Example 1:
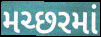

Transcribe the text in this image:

મચ્છરમાં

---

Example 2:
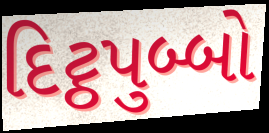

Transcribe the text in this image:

દિટ્ઠપુબ્બો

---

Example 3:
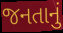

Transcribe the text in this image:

જનતાનું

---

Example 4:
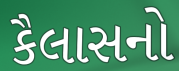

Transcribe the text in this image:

કૈલાસનો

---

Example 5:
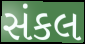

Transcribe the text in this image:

સંકલ